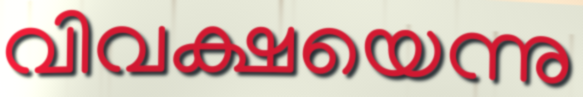
വിവക്ഷയെന്നു